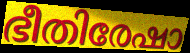
ഭീതിരേഷാ